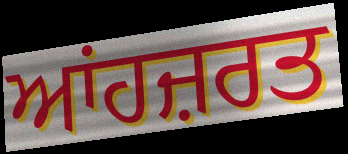
ਆਂਹਜ਼ਰਤ